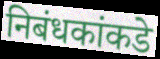
निबंधकांकडे